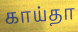
காய்தா